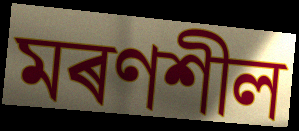
মৰণশীল